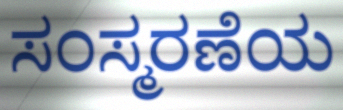
ಸಂಸ್ಮರಣೆಯ